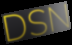
DSN